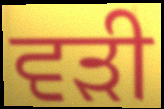
ਵੜੀ